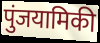
पुंजयामिकी